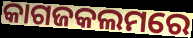
କାଗଜକଲମରେ